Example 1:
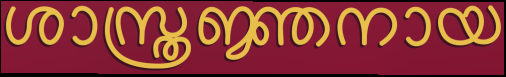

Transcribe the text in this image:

ശാസ്ത്രജ്ഞനായ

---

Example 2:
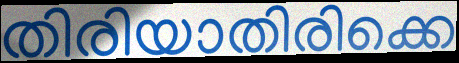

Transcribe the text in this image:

തിരിയാതിരിക്കെ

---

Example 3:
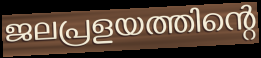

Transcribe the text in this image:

ജലപ്രളയത്തിന്റെ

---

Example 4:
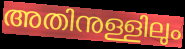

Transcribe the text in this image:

അതിനുള്ളിലും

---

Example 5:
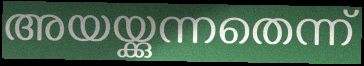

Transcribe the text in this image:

അയയ്ക്കുന്നതെന്ന്